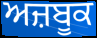
ਅਜ਼ਬੂਕ